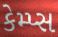
કેમ્પ્સ